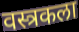
वस्त्रकला